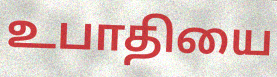
உபாதியை